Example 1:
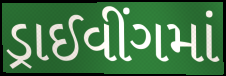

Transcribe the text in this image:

ડ્રાઈવીંગમાં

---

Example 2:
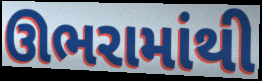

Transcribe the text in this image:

ઊભરામાંથી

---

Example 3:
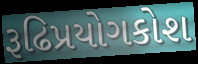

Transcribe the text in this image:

રૂઢિપ્રયોગકોશ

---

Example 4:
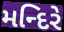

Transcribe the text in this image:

મન્દિરે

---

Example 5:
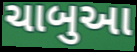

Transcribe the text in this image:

ચાબુઆ